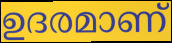
ഉദരമാണ്